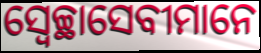
ସ୍ୱେଚ୍ଛାସେବୀମାନେ